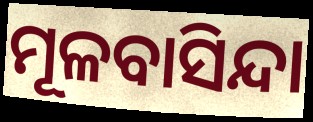
ମୂଳବାସିନ୍ଦା